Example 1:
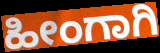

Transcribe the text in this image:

ಹೀಂಗಾಗಿ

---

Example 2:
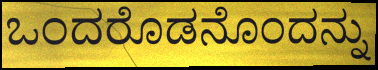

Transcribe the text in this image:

ಒಂದರೊಡನೊಂದನ್ನು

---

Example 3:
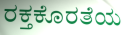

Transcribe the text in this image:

ರಕ್ತಕೊರತೆಯ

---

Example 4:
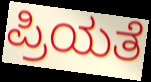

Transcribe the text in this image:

ಪ್ರಿಯತೆ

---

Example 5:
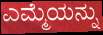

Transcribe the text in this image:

ಎಮ್ಮೆಯನ್ನು